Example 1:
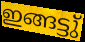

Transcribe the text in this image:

ഇങ്ങട്ടു്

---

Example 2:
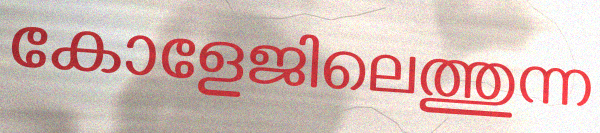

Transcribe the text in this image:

കോളേജിലെത്തുന്ന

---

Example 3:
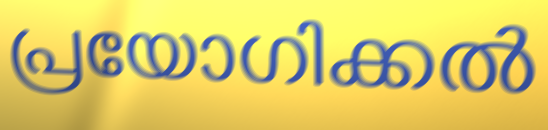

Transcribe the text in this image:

പ്രയോഗിക്കൽ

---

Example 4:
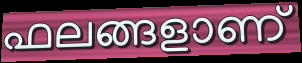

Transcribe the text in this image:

ഫലങ്ങളാണ്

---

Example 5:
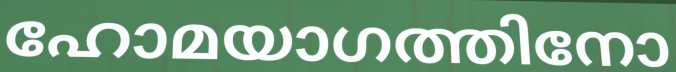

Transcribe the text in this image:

ഹോമയാഗത്തിനോ